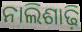
ନାଲିଶାଢ଼ି